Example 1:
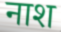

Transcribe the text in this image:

नाश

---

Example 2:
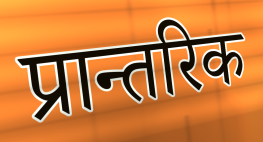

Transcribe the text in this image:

प्रान्तरिक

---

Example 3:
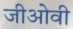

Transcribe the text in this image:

जीओवी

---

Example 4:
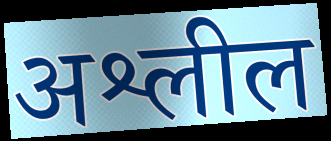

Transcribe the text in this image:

अश्लील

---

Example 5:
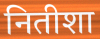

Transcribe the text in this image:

नितीशा